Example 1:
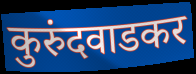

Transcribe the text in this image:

कुरुंदवाडकर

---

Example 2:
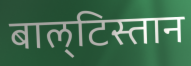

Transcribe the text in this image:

बाल्टिस्तान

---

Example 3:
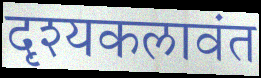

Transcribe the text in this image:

दृश्यकलावंत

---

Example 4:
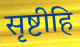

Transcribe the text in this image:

सृष्टीहि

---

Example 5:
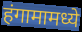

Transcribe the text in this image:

हंगामामध्ये